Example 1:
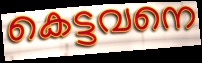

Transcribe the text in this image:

കെട്ടവനെ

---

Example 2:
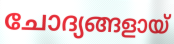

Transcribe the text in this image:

ചോദ്യങ്ങളായ്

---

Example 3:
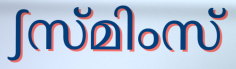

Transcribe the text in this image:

ഽസ്മിംസ്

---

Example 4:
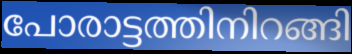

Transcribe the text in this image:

പോരാട്ടത്തിനിറങ്ങി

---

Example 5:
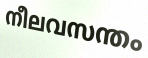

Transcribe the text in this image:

നീലവസന്തം